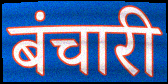
बंचारी